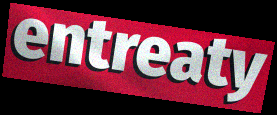
entreaty